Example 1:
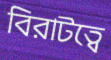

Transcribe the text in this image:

বিরাটত্বে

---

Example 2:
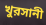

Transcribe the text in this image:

খুরসানী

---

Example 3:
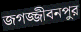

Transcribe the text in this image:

জগজ্জীবনপুর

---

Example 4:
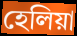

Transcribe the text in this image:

হেলিয়া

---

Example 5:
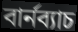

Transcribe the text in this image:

বার্নব্যাচ